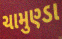
ચામુણ્ડા